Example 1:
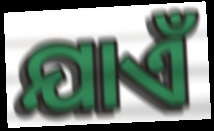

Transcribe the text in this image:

ଯାଏଁ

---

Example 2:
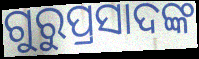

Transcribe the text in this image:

ଗୁରୁପ୍ରସାଦଙ୍କ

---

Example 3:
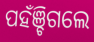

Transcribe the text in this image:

ପହଁଞ୍ଚିଗଲେ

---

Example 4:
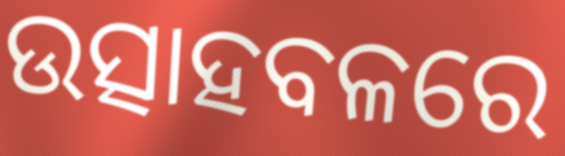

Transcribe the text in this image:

ଉତ୍ସାହବଳରେ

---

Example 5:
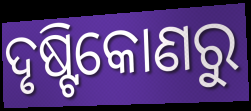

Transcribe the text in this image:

ଦୃଷ୍ଟିକୋଣରୁ